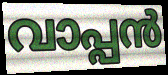
വാപ്പൻ